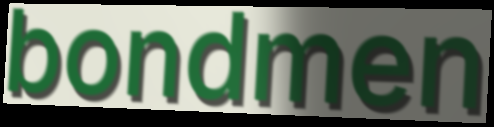
bondmen